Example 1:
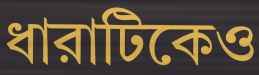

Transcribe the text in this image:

ধারাটিকেও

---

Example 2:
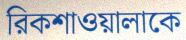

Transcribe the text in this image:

রিকশাওয়ালাকে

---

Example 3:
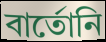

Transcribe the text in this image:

বার্তোনি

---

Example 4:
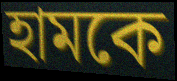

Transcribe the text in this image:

হামকে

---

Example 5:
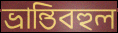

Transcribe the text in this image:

ভ্রান্তিবহুল